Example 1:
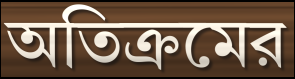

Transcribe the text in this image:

অতিক্রমের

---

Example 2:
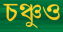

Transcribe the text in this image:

চঞ্চুও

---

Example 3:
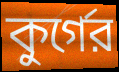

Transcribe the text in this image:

কুর্গের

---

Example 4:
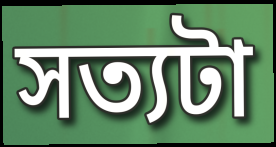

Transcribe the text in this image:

সত্যটা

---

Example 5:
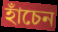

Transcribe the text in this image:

হাঁচেন